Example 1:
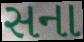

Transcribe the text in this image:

સના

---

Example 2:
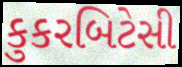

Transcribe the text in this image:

કુકરબિટેસી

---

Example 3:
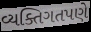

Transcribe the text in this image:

વ્યક્તિગતપણે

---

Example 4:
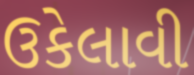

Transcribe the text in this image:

ઉકેલાવી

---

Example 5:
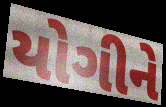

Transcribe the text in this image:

યોગીને